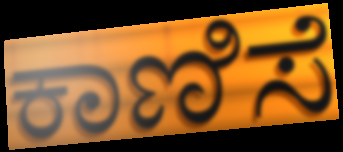
ಕಾಣಿಸೆ